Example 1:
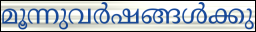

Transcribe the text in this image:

മൂന്നുവർഷങ്ങൾക്കു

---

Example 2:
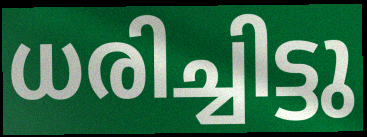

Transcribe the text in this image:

ധരിച്ചിട്ടു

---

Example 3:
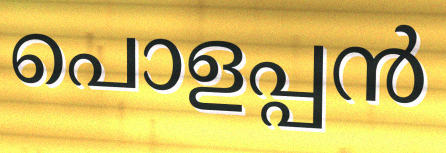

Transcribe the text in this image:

പൊളപ്പൻ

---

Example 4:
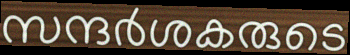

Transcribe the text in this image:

സന്ദർശകരുടെ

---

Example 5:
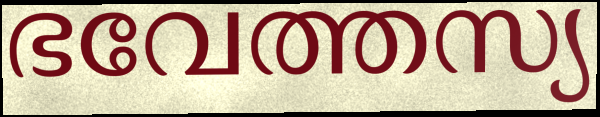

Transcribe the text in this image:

ഭവേത്തസ്യ